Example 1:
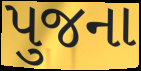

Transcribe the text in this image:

પુજના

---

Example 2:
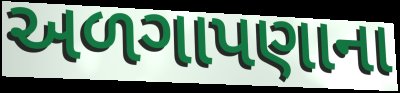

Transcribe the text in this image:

અળગાપણાના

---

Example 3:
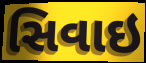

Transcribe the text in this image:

સિવાઇ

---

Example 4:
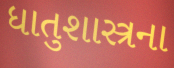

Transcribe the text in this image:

ધાતુશાસ્ત્રના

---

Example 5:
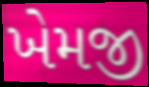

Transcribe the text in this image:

ખેમજી